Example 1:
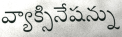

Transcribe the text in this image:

వ్యాక్సినేషన్ను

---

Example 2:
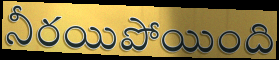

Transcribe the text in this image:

నీరయిపోయింది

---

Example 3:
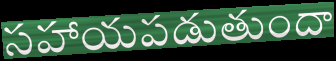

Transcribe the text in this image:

సహాయపడుతుందా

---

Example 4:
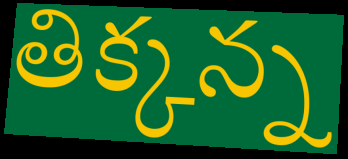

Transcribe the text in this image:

తిక్కన్న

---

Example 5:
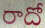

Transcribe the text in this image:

రాదో